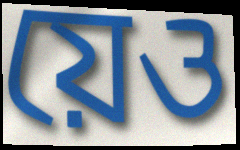
য়েও